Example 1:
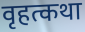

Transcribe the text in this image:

वृहत्कथा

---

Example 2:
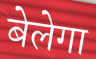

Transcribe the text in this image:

बेलेगा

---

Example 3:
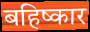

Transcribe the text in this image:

बहिष्कार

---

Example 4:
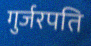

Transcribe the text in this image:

गुर्जरपति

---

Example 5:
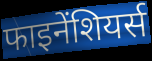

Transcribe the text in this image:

फाइनेंशियर्स